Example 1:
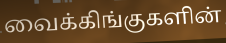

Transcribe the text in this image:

வைக்கிங்குகளின்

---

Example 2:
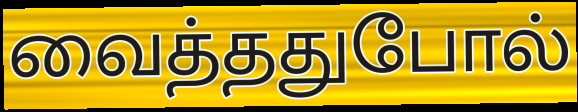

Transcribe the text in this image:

வைத்ததுபோல்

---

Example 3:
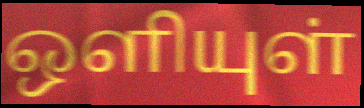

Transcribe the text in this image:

ஒளியுள்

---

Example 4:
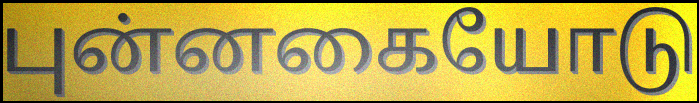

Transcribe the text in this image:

புன்னகையோடு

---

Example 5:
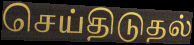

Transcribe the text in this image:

செய்திடுதல்